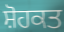
ਸ਼ੋਹਕਤ